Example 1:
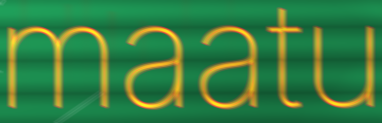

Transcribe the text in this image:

maatu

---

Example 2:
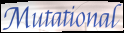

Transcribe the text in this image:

Mutational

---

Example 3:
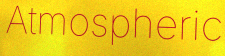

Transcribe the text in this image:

Atmospheric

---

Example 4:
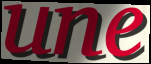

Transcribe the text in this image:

une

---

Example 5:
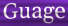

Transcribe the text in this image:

Guage